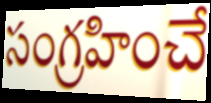
సంగ్రహించే